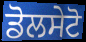
ਡੋਲਸੇਟੋ